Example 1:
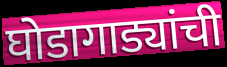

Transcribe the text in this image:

घोडागाड्यांची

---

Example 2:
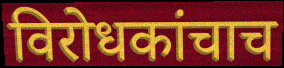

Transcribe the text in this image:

विरोधकांचाच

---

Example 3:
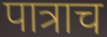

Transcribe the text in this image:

पात्राच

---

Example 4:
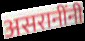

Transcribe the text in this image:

असरानींनी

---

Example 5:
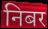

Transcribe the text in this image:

निबर